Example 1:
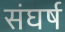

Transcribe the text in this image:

संघर्ष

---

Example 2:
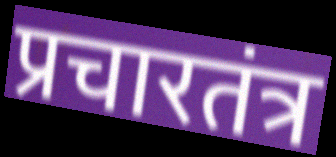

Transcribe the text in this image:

प्रचारतंत्र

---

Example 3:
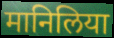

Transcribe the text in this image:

मानिलिया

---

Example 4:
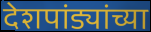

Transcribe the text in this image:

देशपांड्यांच्या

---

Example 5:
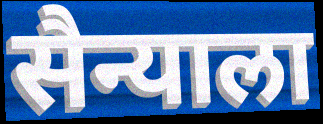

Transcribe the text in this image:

सैन्याला